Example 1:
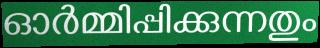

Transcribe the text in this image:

ഓർമ്മിപ്പിക്കുന്നതും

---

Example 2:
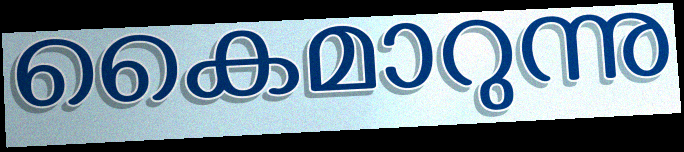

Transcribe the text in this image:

കൈമാറുന്നു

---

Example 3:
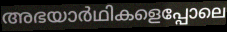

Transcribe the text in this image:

അഭയാർഥികളെപ്പോലെ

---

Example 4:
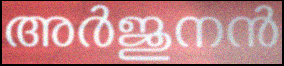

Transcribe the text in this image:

അർജുനൻ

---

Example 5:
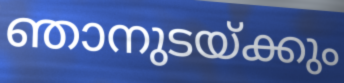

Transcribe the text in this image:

ഞാനുടയ്ക്കും